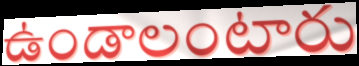
ఉండాలంటారు